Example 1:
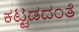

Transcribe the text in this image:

ಕಟ್ಟಡದಂತೆ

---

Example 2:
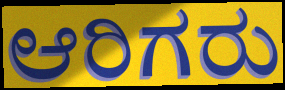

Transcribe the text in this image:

ಆರಿಗರು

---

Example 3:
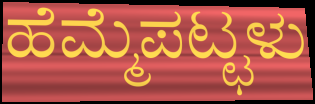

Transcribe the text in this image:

ಹೆಮ್ಮೆಪಟ್ಟಳು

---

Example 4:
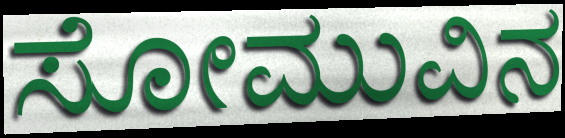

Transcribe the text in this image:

ಸೋಮುವಿನ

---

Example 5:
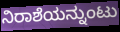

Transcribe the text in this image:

ನಿರಾಶೆಯನ್ನುಂಟು